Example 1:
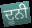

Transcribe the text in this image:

ਦੂਨੀ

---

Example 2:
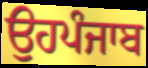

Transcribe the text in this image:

ਉਹਪੰਜਾਬ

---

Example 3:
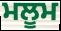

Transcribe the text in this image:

ਮਲੂਮ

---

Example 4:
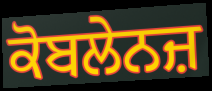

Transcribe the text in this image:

ਕੋਬਲੇਨਜ਼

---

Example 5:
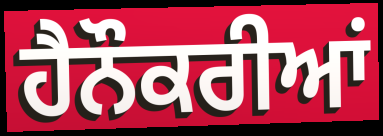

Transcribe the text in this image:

ਹੈਨੌਕਰੀਆਂ